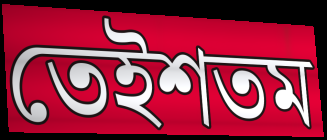
তেইশতম